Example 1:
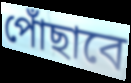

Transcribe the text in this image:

পোঁছাবে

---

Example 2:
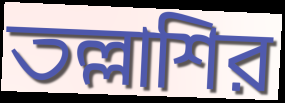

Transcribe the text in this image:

তল্লাশির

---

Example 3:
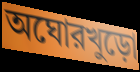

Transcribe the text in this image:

অঘোরখুড়ো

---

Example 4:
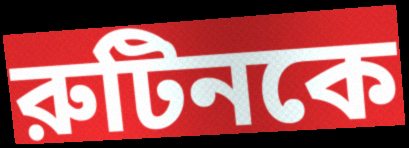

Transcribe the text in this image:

রুটিনকে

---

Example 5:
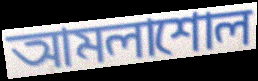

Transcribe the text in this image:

আমলাশোল